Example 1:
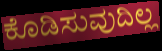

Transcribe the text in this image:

ಕೊಡಿಸುವುದಿಲ್ಲ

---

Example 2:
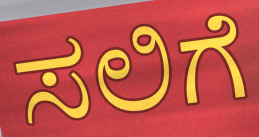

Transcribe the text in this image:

ಸಲಿಗೆ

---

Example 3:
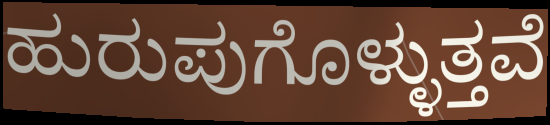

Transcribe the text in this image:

ಹುರುಪುಗೊಳ್ಳುತ್ತವೆ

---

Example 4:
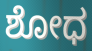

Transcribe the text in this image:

ಶೋಧ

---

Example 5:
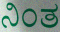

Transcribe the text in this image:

ನಿಂತ